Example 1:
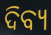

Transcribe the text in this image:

ଦିବ୍ୟ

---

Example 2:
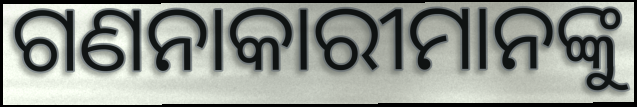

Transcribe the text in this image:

ଗଣନାକାରୀମାନଙ୍କୁ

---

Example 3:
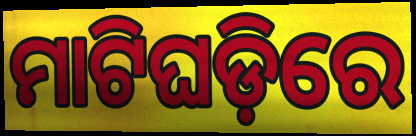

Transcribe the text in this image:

ମାଟିଘଡ଼ିରେ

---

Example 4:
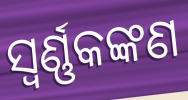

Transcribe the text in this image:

ସ୍ୱର୍ଣ୍ଣକଙ୍କଣ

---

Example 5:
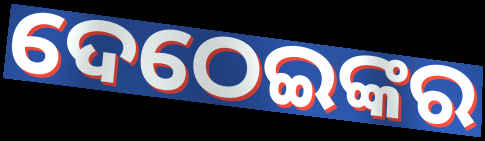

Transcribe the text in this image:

ଦେଠେଇଙ୍କର